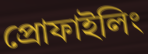
প্রোফাইলিং